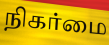
நிகர்மை